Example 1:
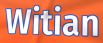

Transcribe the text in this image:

Witian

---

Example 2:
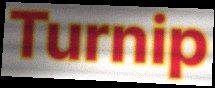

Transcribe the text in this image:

Turnip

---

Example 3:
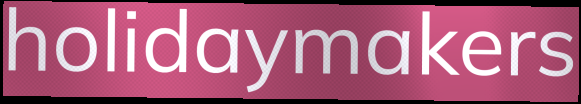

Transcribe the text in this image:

holidaymakers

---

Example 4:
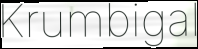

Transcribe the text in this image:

Krumbigal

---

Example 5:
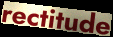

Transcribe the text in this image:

rectitude